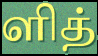
ளித்